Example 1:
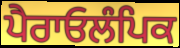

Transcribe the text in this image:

ਪੈਰਾਓਲੰਪਿਕ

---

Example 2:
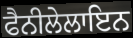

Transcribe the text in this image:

ਫੈਨੀਲੇਲਾਇਨ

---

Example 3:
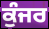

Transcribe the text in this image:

ਕੁੰਜਰ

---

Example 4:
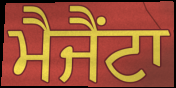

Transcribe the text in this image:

ਮੈਜੈਂਟਾ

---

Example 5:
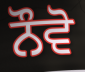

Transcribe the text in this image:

ਨੌਵੋ